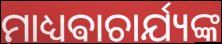
ମାଧ୍ୟଵାଚାର୍ଯ୍ୟଙ୍କ